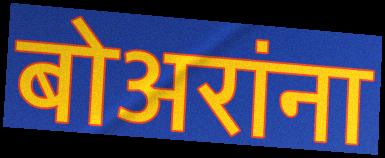
बोअरांना